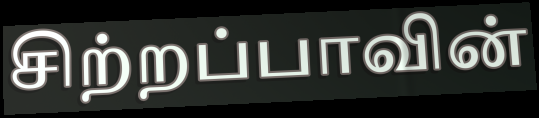
சிற்றப்பாவின்